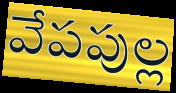
వేపపుల్ల